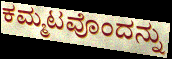
ಕಮ್ಮಟವೊಂದನ್ನು